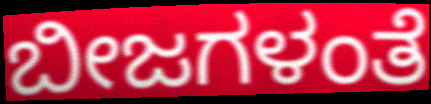
ಬೀಜಗಳಂತೆ